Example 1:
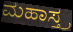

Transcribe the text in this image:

ಮಹಾಸ್ತ್ರ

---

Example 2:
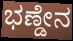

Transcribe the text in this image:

ಭಣ್ಡೇನ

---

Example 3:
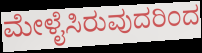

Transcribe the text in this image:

ಮೇಳೈಸಿರುವುದರಿಂದ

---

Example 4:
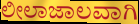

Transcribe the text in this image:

ಲೀಲಾಜಾಲವಾಗಿ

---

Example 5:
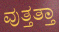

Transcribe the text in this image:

ವುತ್ತತ್ತಾ